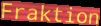
Fraktion